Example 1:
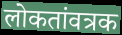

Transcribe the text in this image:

लोकतांवत्रक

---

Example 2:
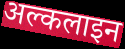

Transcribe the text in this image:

अल्कलाइन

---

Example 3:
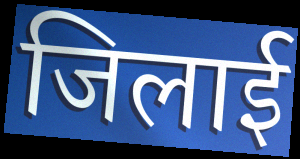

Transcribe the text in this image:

जिलाई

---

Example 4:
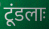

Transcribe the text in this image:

टूंडलाः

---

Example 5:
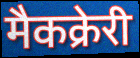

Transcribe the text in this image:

मैकक्रेरी